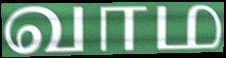
வாம